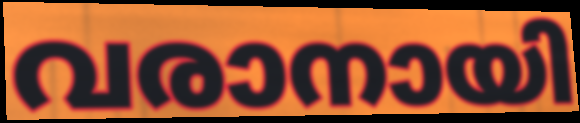
വരാനായി